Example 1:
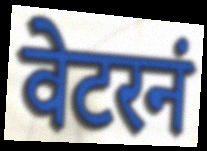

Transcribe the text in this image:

वेटरनं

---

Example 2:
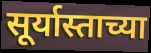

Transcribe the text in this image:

सूर्यास्ताच्या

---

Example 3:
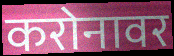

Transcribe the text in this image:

करोनावर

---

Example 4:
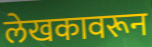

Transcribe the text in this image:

लेखकावरून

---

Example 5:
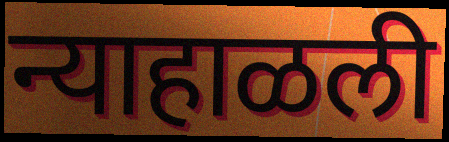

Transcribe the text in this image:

न्याहाळली